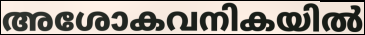
അശോകവനികയിൽ